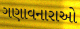
ગણાવનારાઓ